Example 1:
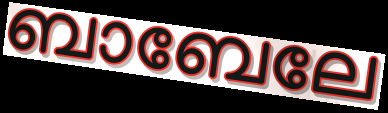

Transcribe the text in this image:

ബാബേലേ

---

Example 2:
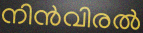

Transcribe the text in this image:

നിൻവിരൽ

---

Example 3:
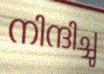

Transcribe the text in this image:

നിന്ദിച്ചു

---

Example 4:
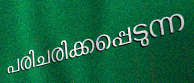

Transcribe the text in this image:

പരിചരിക്കപ്പെടുന്ന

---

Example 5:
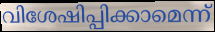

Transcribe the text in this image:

വിശേഷിപ്പിക്കാമെന്ന്